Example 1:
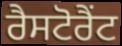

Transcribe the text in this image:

ਰੈਸਟੋਰੈਂਟ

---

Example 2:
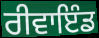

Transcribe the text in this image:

ਰੀਵਾਇੰਡ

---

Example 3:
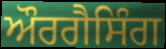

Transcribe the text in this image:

ਔਰਗੈਸਿੰਗ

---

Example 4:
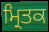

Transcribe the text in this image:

ਮ੍ਰਿਤਕ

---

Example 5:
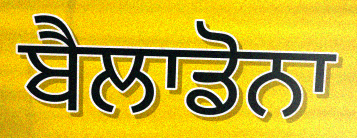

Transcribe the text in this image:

ਬੈਲਾਡੋਨਾ